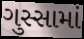
ગુસ્સામાં